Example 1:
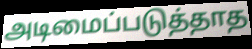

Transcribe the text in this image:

அடிமைப்படுத்தாத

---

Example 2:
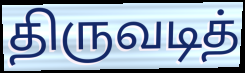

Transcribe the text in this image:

திருவடித்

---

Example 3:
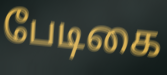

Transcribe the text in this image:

பேடிகை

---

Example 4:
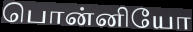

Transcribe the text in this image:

பொன்னியோ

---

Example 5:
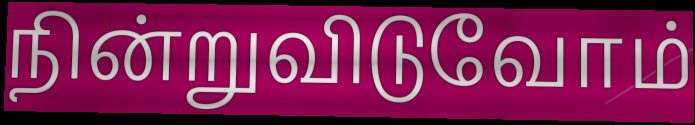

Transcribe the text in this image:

நின்றுவிடுவோம்